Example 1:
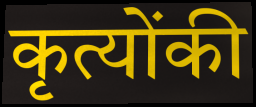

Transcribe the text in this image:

कृत्योंकी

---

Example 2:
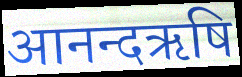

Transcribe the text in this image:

आनन्दऋषि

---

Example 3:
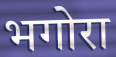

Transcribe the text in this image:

भगोरा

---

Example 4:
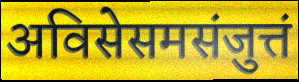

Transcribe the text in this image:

अविसेसमसंजुत्तं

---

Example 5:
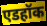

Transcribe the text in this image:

एडहॉक